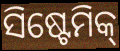
ସିଷ୍ଟେମିକ୍